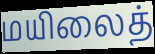
மயிலைத்